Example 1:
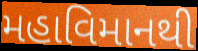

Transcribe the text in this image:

મહાવિમાનથી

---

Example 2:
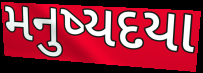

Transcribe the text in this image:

મનુષ્યદયા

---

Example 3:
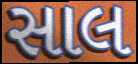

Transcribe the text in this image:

સાલ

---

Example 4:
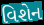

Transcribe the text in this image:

વિશેન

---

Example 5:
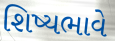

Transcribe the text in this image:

શિષ્યભાવે